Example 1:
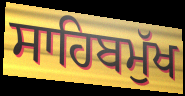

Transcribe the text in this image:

ਸਾਹਿਬਮੁੱਖ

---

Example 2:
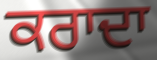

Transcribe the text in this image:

ਕਰਾਦਾ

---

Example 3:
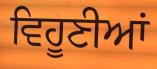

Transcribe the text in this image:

ਵਿਹੂਣੀਆਂ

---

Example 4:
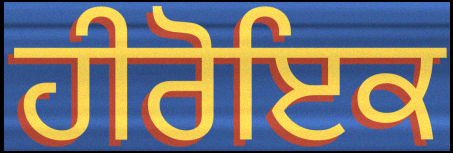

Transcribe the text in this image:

ਹੀਰੋਇਕ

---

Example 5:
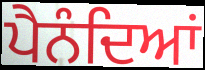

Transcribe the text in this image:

ਪੈਨੰਦਿਆਂ